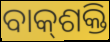
ବାକ୍‌ଶକ୍ତି